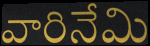
వారినేమి